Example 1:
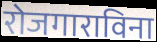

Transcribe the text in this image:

रोजगाराविना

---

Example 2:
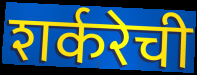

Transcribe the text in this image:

शर्करेची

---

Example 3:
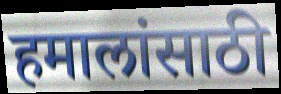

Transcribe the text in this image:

हमालांसाठी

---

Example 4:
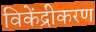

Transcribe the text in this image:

विकेंद्रीकरण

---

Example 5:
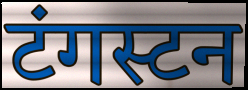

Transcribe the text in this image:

टंगस्टन